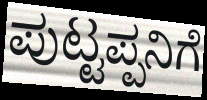
ಪುಟ್ಟಪ್ಪನಿಗೆ